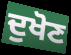
ਦੁਖੋਣ